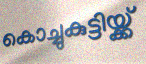
കൊച്ചുകുട്ടിയ്ക്ക്